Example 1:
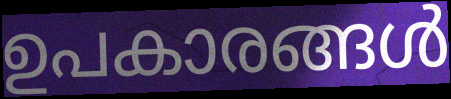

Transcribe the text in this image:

ഉപകാരങ്ങൾ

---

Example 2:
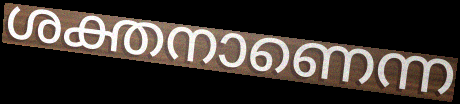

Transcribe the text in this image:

ശക്തനാണെന്ന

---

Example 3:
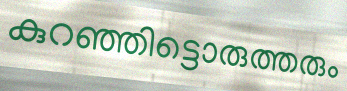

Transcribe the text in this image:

കുറഞ്ഞിട്ടൊരുത്തരും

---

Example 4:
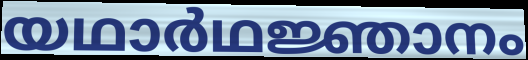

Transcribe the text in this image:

യഥാർഥജ്ഞാനം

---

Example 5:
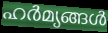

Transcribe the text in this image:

ഹർമ്യങ്ങൾ